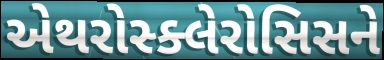
એથરોસ્ક્લેરોસિસને